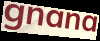
gnana